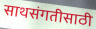
साथसंगतीसाठी